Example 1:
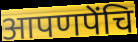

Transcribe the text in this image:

आपणपेंचि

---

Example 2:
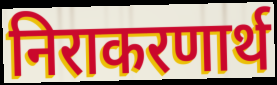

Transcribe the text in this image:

निराकरणार्थ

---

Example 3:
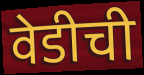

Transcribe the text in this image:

वेडीची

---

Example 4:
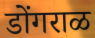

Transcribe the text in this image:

डोंगराळ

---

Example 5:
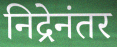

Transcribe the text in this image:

निद्रेनंतर